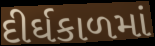
દીર્ઘકાળમાં